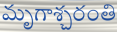
మృగాశ్చరంతి